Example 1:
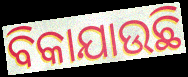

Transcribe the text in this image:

ବିକାଯାଉଛି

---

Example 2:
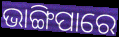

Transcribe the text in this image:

ଭାଙ୍ଗିପାରେ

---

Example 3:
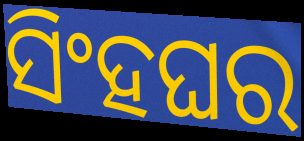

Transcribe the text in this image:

ସିଂହଘର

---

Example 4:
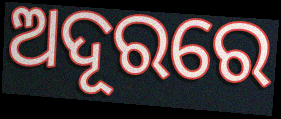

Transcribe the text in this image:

ଅଦୂରରେ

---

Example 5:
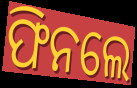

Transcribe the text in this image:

ଫିନଲେ